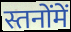
स्तनोंमें